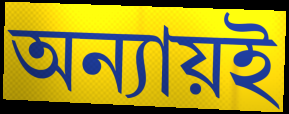
অন্যায়ই